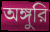
অঙ্গুরি